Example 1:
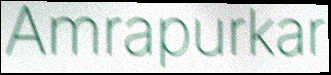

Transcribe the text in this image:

Amrapurkar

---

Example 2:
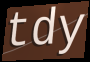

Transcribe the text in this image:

tdy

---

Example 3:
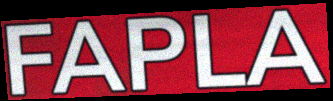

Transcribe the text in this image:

FAPLA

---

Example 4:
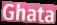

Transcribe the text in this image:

Ghata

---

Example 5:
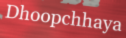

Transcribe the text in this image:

Dhoopchhaya